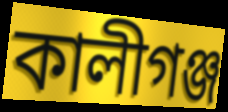
কালীগঞ্জ